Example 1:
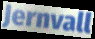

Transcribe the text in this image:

Jernvall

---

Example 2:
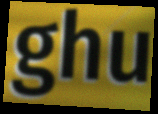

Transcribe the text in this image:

ghu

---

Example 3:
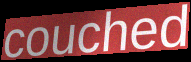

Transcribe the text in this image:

couched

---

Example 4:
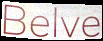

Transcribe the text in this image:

Belve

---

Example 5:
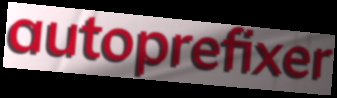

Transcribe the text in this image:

autoprefixer